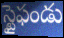
స్టైఫండు